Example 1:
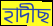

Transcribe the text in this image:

হাদীছ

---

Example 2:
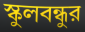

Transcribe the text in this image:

স্কুলবন্ধুর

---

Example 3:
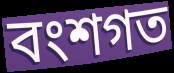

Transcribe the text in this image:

বংশগত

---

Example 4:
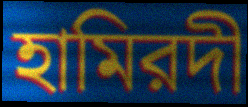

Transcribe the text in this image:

হামিরদী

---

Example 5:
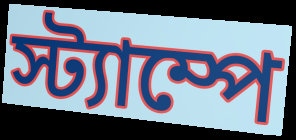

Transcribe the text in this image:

স্ট্যাম্পে